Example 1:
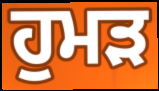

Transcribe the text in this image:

ਹੁਮੜ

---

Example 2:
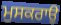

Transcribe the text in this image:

ਮੁਸਕਰਾਉ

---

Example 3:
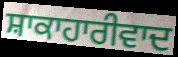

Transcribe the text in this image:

ਸ਼ਾਕਾਹਾਰੀਵਾਦ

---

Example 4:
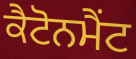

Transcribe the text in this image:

ਕੈਟੋਨਮੈਂਟ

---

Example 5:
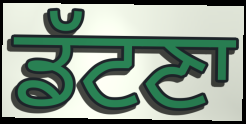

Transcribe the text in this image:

ਡੱਟਣਾ